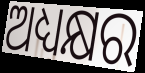
ଅଧ୍ୟକ୍ଷର